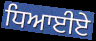
ਧਿਆਈਏ